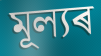
মূল্যৰ